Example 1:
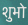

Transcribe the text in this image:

शुभो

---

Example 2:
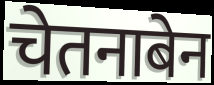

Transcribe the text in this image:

चेतनाबेन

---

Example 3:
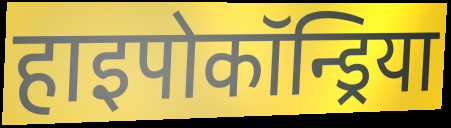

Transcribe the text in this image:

हाइपोकॉन्ड्रिया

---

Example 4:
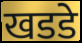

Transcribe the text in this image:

खडडे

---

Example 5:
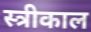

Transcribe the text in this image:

स्त्रीकाल